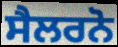
ਸੈਲਰਨੋ